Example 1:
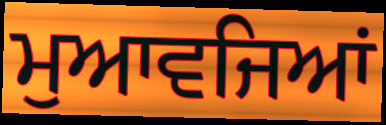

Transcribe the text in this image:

ਮੁਆਵਜਿਆਂ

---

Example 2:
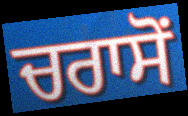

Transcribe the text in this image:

ਚਰਾਸੋਂ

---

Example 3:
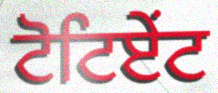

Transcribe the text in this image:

ਟੋਟਿਏਂਟ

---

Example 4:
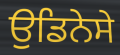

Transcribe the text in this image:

ਉਡਿਨੇਸੇ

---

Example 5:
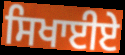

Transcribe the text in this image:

ਸਿਖਾਈਏ